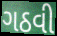
ગઠવી